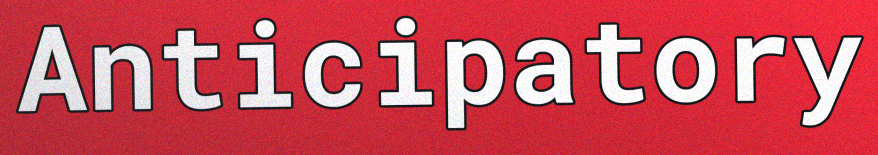
Anticipatory